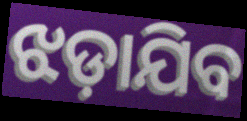
ଝଡ଼ାଯିବ